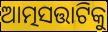
ଆତ୍ମସତ୍ତାଟିକୁ